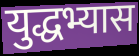
युद्धभ्यास